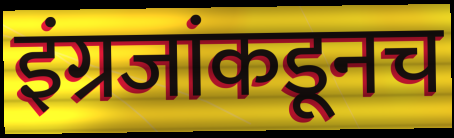
इंग्रजांकडूनच